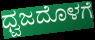
ಧ್ವಜದೊಳಗೆ